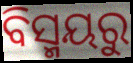
ବିସ୍ମୟରୁ